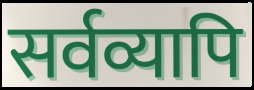
सर्वव्यापि